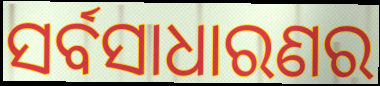
ସର୍ବସାଧାରଣର